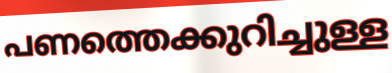
പണത്തെക്കുറിച്ചുള്ള